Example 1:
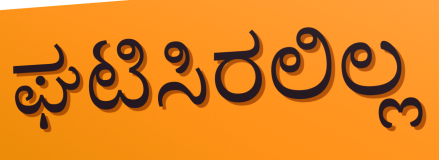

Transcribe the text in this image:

ಘಟಿಸಿರಲಿಲ್ಲ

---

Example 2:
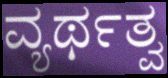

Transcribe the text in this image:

ವ್ಯರ್ಥತ್ವ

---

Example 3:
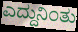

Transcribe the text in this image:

ಎದ್ದುನಿಂತು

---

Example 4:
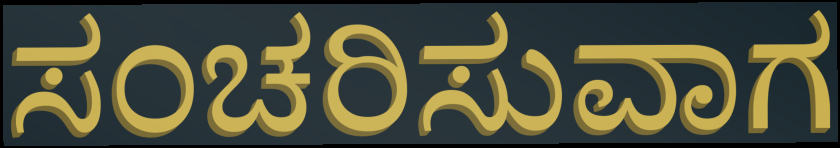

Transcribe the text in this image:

ಸಂಚರಿಸುವಾಗ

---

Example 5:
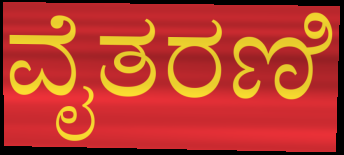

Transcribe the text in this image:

ವೈತರಣಿ